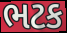
ભટક